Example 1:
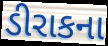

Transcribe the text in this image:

ડીરાકના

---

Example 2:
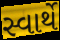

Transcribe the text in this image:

સ્વાર્થે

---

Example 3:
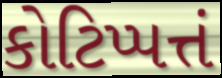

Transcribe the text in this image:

કોટિપ્પત્તં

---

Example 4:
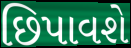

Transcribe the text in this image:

છિપાવશે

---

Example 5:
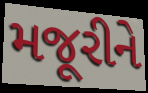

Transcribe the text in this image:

મજૂરીને